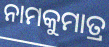
ନାମକୁମାତ୍ର